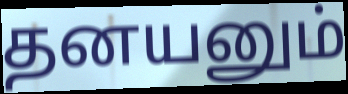
தனயனும்